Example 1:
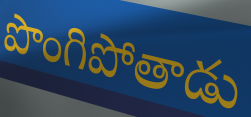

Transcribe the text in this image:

పొంగిపోతాడు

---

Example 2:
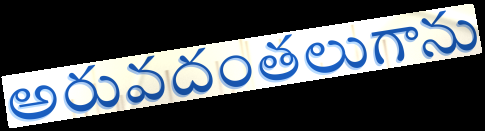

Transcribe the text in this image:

అరువదంతలుగాను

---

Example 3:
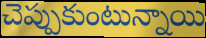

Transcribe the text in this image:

చెప్పుకుంటున్నాయి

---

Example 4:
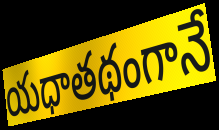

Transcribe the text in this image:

యధాతథంగానే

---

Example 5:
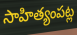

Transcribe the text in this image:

సాహిత్యంపట్ల